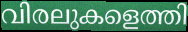
വിരലുകളെത്തി